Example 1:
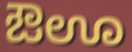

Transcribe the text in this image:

ಔಊ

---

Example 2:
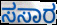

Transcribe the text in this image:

ಸಸಾರ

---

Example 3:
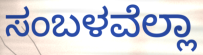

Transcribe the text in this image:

ಸಂಬಳವೆಲ್ಲಾ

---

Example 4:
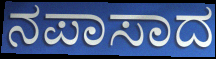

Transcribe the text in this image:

ನಪಾಸಾದ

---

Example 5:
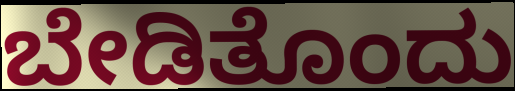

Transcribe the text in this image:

ಬೇಡಿತೊಂದು